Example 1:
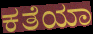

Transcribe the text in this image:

ಕತೆಯಾ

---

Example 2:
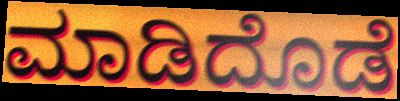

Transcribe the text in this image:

ಮಾಡಿದೊಡೆ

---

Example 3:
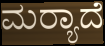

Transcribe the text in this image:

ಮರ‍್ಯಾದೆ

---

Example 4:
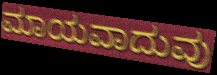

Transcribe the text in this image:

ಮಾಯವಾದುವು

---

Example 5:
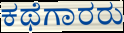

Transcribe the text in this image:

ಕಥೆಗಾರರು